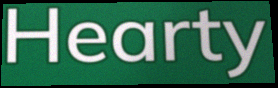
Hearty